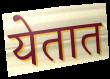
येतात